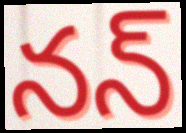
నన్